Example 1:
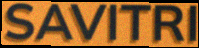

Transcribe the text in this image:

SAVITRI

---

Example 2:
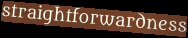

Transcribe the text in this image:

straightforwardness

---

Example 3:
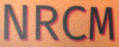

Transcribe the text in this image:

NRCM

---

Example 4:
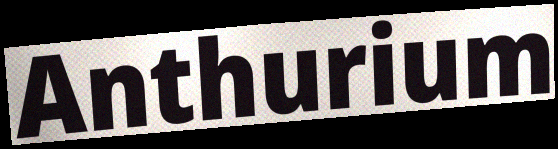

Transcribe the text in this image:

Anthurium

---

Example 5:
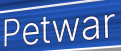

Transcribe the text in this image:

Petwar